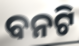
ବନଟି